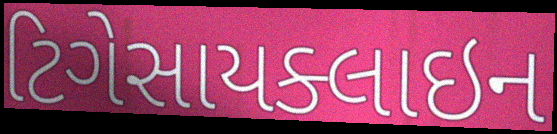
ટિગેસાયક્લાઇન